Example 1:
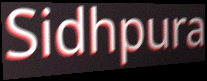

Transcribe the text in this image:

Sidhpura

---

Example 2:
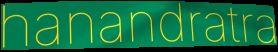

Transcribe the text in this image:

hanandratra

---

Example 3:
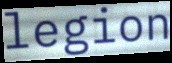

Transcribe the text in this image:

legion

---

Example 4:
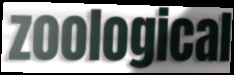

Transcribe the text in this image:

zoological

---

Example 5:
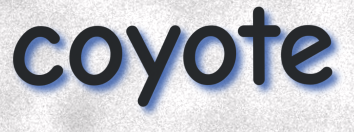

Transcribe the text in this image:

coyote